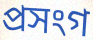
প্ৰসংগ